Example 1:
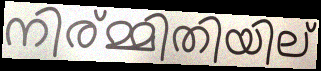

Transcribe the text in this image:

നിര്മ്മിതിയില്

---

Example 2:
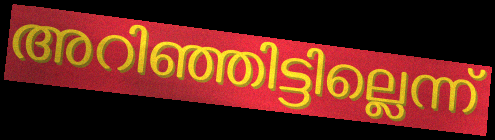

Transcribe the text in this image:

അറിഞ്ഞിട്ടില്ലെന്ന്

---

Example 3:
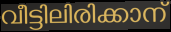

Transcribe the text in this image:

വീട്ടിലിരിക്കാന്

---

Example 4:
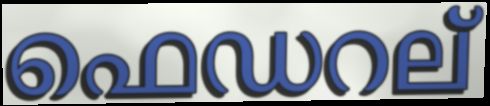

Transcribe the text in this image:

ഫെഡറല്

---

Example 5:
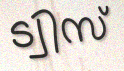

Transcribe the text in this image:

ട്വിസ്